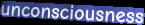
unconsciousness